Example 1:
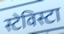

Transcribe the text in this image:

स्टेविस्टा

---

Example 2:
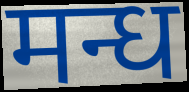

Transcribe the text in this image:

मन्ध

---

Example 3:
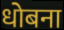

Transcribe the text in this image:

धोबना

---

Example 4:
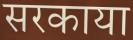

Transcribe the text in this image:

सरकाया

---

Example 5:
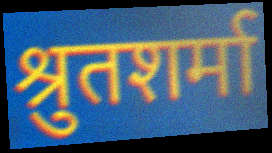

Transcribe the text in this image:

श्रुतशर्मा